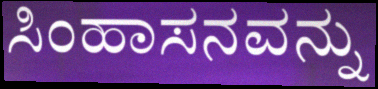
ಸಿಂಹಾಸನವನ್ನು